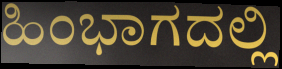
ಹಿಂಭಾಗದಲ್ಲಿ